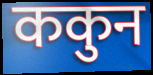
ककुन